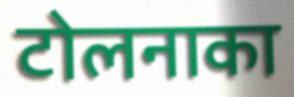
टोलनाका